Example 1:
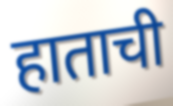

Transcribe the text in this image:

हाताची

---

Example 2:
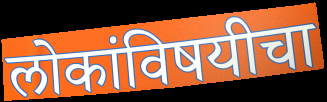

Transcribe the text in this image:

लोकांविषयीचा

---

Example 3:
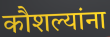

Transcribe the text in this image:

कौशल्यांना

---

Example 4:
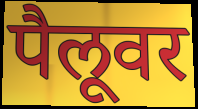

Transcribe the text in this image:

पैलूवर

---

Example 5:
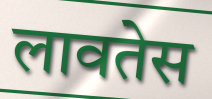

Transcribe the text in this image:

लावतेस